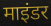
माइंडर